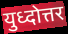
युध्दोत्तर